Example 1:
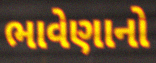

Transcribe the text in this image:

ભાવેણાનો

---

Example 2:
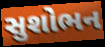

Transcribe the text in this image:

સુશોભન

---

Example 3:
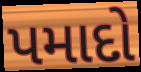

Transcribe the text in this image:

પમાદો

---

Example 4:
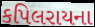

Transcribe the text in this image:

કપિલરાયના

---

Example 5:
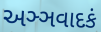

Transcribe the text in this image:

અઞ્ઞવાદકં